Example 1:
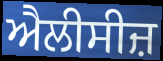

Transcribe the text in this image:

ਐਲੀਸੀਜ਼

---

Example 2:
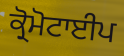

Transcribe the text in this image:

ਕ੍ਰੋਮੋਟਾਈਪ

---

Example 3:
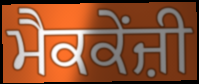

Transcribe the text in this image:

ਮੈਕਕੇਂਜ਼ੀ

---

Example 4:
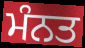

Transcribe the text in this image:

ਮੰਨਤ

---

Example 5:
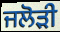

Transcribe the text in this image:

ਜਲੋੜੀ